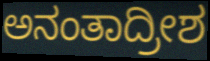
ಅನಂತಾದ್ರೀಶ